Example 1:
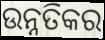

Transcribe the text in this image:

ଉନ୍ନତିକର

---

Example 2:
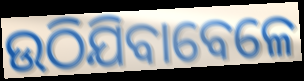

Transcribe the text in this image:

ଉଠିଯିବାବେଳେ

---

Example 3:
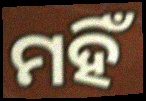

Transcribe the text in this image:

ମହିଁ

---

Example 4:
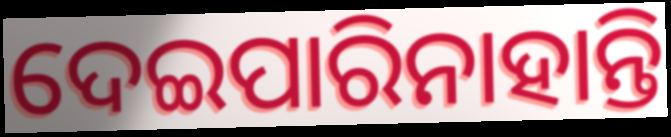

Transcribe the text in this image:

ଦେଇପାରିନାହାନ୍ତି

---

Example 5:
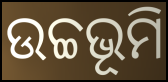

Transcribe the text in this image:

ଉଚ୍ଚଭୂମି